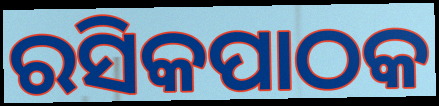
ରସିକପାଠକ